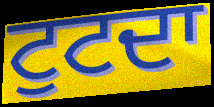
ਟੁਟਦਾ